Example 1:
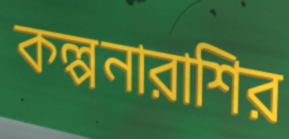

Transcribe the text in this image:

কল্পনারাশির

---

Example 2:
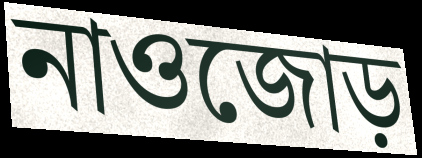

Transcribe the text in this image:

নাওজোড়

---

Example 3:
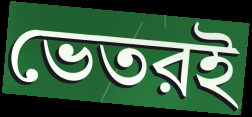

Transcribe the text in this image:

ভেতরই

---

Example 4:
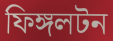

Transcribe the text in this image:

ফিঙ্গলটন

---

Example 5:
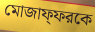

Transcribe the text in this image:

মোজাফ্ফরকে